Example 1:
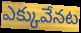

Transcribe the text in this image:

ఎక్కువేనట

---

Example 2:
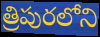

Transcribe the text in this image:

త్రిపురలోని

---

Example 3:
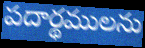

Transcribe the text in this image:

పదార్థములను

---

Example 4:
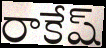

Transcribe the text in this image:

రాకేష్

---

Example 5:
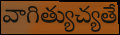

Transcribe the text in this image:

వాగిత్యుచ్యతే